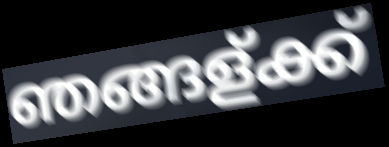
ഞങ്ങള്ക്ക്